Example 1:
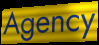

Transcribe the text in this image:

Agency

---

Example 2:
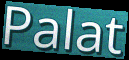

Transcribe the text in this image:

Palat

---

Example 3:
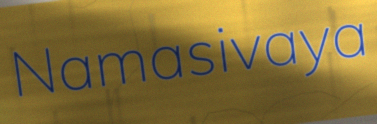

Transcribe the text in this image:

Namasivaya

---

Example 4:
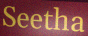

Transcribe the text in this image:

Seetha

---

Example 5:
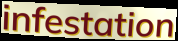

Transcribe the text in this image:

infestation